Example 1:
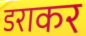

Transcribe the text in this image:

डराकर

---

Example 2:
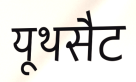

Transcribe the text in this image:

यूथसैट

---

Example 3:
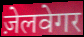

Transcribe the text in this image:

ज़ेलवेगर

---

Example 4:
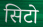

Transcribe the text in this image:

सिटो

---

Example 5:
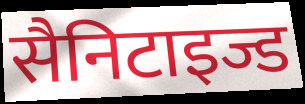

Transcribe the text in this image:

सैनिटाइज्ड